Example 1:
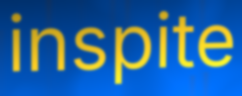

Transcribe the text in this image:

inspite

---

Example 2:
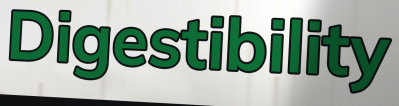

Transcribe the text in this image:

Digestibility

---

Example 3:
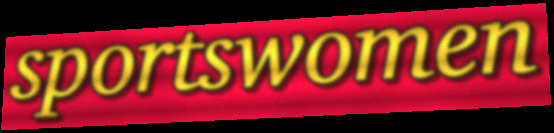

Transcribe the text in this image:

sportswomen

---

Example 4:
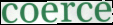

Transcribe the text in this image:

coerce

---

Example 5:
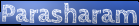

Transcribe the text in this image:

Parasharam